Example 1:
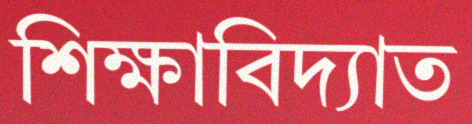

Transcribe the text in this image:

শিক্ষাবিদ্যাত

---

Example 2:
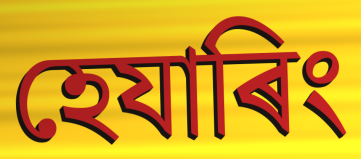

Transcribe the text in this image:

হেযাৰিং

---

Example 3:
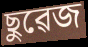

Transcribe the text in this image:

ছুৱেজ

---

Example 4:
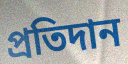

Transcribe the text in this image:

প্ৰতিদান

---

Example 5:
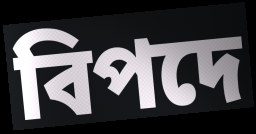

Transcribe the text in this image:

বিপদে